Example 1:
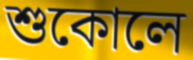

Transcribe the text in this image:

শুকোলে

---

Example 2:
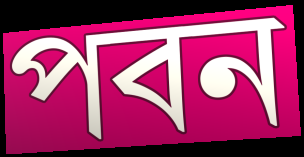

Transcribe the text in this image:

পবন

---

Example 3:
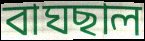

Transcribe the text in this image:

বাঘছাল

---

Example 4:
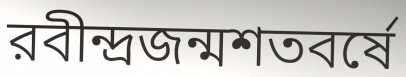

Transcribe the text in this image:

রবীন্দ্রজন্মশতবর্ষে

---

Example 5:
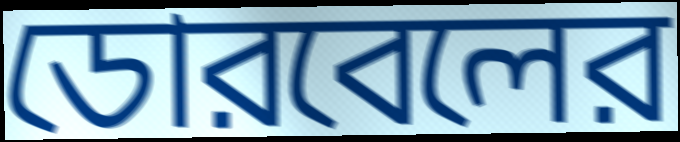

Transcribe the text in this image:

ডোরবেলের